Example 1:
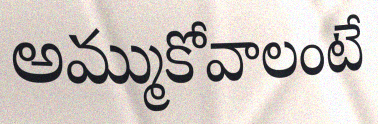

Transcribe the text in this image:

అమ్ముకోవాలంటే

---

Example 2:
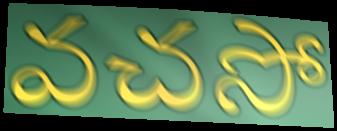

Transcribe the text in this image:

వచసో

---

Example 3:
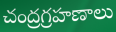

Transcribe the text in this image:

చంద్రగ్రహణాలు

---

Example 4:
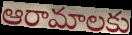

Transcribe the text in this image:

ఆరామాలకు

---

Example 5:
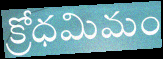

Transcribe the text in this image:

క్రోధమిమం